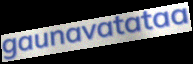
gaunavatataa